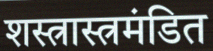
शस्त्रास्त्रमंडित